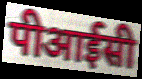
पीआईसी